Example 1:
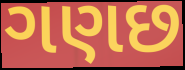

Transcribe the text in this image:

ગણછ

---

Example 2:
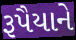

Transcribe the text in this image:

રૂપૈયાને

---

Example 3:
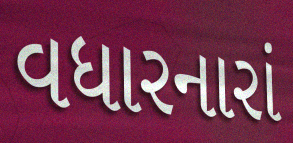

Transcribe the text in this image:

વધારનારાં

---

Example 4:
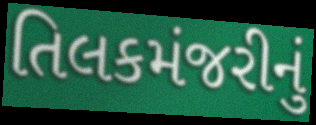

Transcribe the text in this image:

તિલકમંજરીનું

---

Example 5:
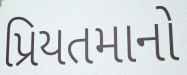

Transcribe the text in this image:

પ્રિયતમાનો